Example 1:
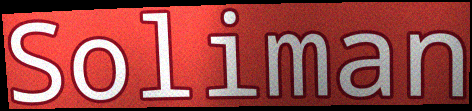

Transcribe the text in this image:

Soliman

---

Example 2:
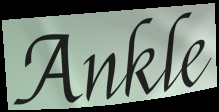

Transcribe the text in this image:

Ankle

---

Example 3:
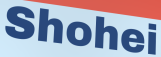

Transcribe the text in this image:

Shohei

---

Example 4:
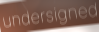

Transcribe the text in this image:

undersigned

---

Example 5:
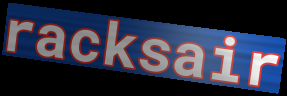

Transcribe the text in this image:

racksair